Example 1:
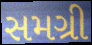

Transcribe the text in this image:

સમગ્રી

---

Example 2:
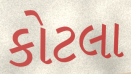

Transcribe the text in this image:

કોટલા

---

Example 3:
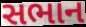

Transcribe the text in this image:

સભાન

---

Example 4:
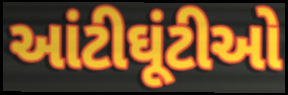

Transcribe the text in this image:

આંટીઘૂંટીઓ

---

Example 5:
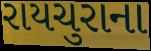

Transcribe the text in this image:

રાયચુરાના